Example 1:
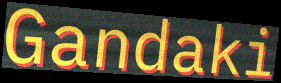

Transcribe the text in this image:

Gandaki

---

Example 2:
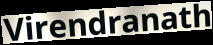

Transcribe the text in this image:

Virendranath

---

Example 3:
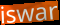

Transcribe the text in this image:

iswar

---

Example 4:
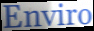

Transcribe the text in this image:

Enviro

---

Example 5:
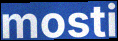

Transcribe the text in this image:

mosti